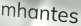
mhantes